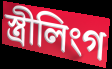
স্ত্ৰীলিংগ